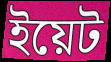
ইয়েট